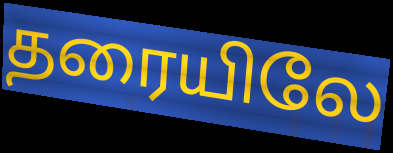
தரையிலே